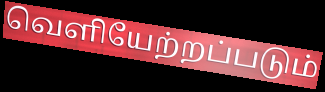
வெளியேற்றப்படும்